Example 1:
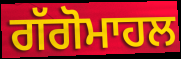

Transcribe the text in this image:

ਗੱਗੋਮਾਹਲ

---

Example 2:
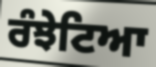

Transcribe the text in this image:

ਰੰਝੇਟਿਆ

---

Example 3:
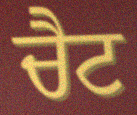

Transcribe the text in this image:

ਚੈਟ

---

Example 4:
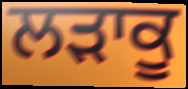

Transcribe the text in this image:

ਲੜਾਕੂ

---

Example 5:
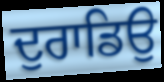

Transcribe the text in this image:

ਦੁਰਾਡਿਉ